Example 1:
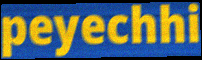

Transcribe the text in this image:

peyechhi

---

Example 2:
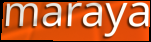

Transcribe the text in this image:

maraya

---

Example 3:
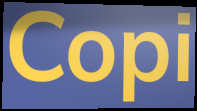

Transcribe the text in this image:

Copi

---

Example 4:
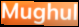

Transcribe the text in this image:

Mughul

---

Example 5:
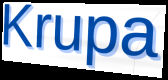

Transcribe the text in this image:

Krupa